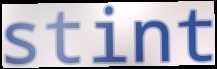
stint